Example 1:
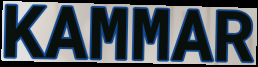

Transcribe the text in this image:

KAMMAR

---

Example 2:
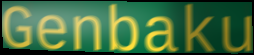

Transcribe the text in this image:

Genbaku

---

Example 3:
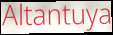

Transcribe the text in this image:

Altantuya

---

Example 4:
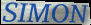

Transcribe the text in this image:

SIMON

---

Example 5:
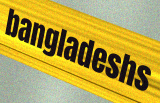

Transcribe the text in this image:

bangladeshs